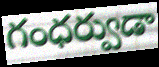
గంధర్వుడా